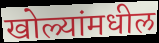
खोल्यांमधील